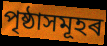
পৃষ্ঠাসমূহৰ